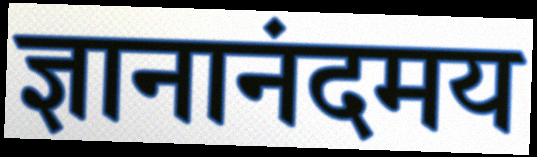
ज्ञानानंदमय